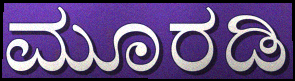
ಮೂರಡಿ